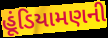
હૂંડિયામણની